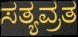
ಸತ್ಯವ್ರತ